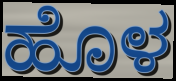
ಹೊಳ